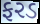
ફરડ